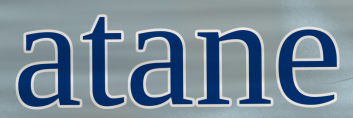
atane